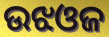
ଉଝଓଜ